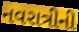
નવરાત્રીની